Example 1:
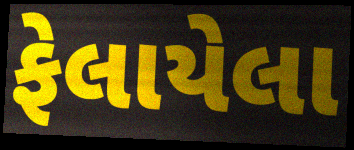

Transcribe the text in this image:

ફેલાયેલા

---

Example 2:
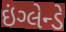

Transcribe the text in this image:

ઇંગ્લેન્ડે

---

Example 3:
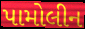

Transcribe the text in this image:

પામોલીન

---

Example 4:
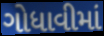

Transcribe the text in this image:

ગોધાવીમાં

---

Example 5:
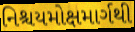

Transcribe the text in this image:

નિશ્ચયમોક્ષમાર્ગથી